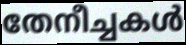
തേനീച്ചകൾ